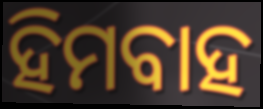
ହିମବାହ